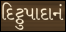
દિટ્ઠુપાદાનં